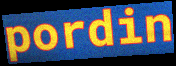
pordin